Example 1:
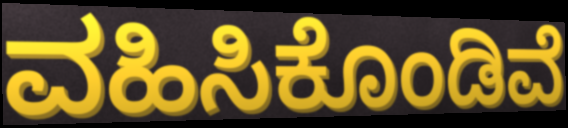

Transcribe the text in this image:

ವಹಿಸಿಕೊಂಡಿವೆ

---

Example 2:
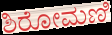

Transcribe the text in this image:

ಶಿರೋಮಣಿ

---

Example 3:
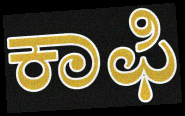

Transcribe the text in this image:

ಕಾಫಿ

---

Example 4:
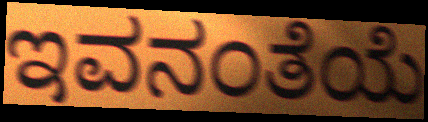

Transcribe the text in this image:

ಇವನಂತೆಯೆ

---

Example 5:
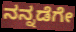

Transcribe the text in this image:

ನನ್ನಡೆಗೇ